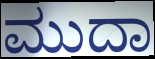
ಮುದಾ